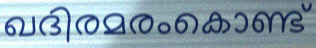
ഖദിരമരംകൊണ്ട്